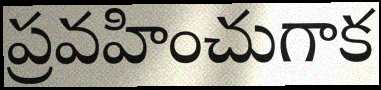
ప్రవహించుగాక